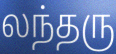
லந்தரு